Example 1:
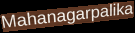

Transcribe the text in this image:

Mahanagarpalika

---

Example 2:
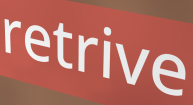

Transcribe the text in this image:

retrive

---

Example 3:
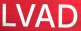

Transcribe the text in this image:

LVAD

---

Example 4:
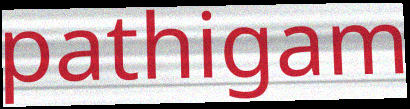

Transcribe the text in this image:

pathigam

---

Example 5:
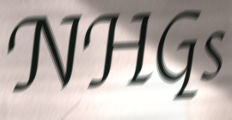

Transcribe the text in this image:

NHGs